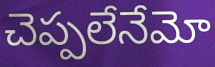
చెప్పలేనేమో